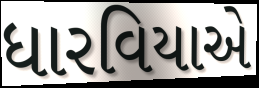
ધારવિયાએ